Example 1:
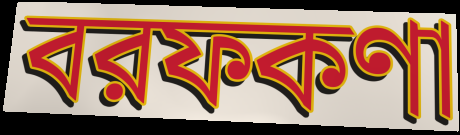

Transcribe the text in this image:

বরফকণা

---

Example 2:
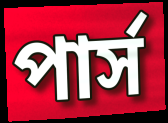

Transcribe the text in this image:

পার্স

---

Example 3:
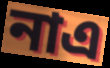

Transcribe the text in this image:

নাএ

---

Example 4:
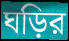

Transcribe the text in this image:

ঘড়ির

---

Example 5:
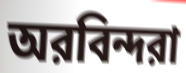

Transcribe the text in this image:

অরবিন্দরা